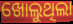
ଖୋଲୁଥିଲା